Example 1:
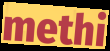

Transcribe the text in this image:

methi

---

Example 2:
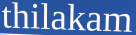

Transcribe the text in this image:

thilakam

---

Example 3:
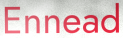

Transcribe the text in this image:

Ennead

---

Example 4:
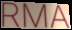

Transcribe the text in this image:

RMA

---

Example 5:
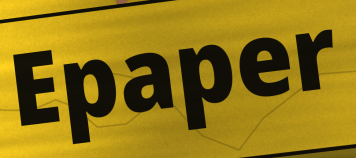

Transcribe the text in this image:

Epaper